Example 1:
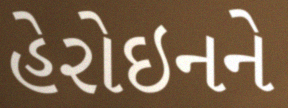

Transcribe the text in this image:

હેરોઇનને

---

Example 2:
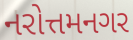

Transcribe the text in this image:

નરોત્તમનગર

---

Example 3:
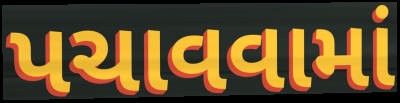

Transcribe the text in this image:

પચાવવામાં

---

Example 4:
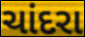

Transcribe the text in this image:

ચાંદરા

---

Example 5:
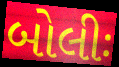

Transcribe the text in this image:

બોલીઃ